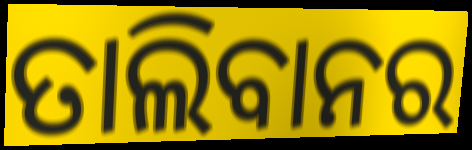
ତାଲିବାନର